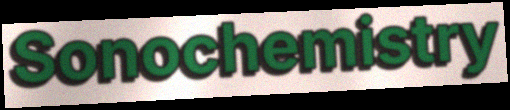
Sonochemistry